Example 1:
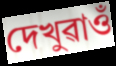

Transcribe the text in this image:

দেখুৱাওঁ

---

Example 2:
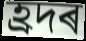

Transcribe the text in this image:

হ্ৰদৰ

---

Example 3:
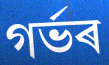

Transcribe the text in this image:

গৰ্ভৰ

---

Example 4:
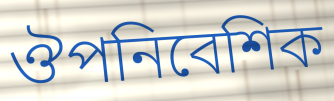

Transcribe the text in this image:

ঔপনিবেশিক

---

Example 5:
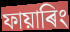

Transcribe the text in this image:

ফায়াৰিং